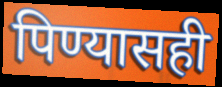
पिण्यासही